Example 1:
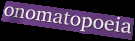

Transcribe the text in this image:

onomatopoeia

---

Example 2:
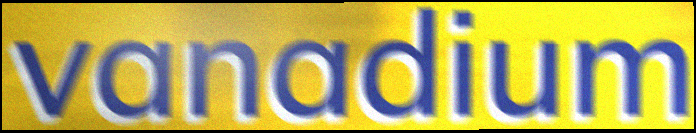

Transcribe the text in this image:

vanadium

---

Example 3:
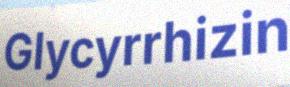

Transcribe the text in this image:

Glycyrrhizin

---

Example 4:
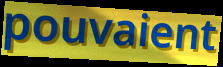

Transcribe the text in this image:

pouvaient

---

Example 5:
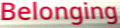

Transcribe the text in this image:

Belonging